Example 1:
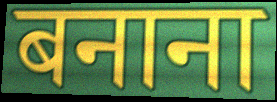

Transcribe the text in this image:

बनाना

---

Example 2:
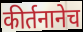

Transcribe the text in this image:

कीर्तनानेच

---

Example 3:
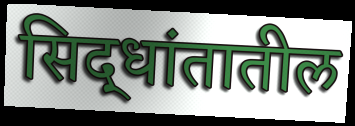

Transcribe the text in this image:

सिद्धांतातील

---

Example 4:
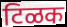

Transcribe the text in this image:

टिळक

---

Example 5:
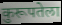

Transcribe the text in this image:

कुरूपतेला